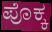
ಪೊಕ್ಕ